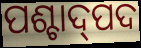
ପଶ୍ଚାଦ୍‍ପଦ